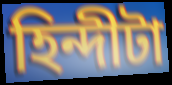
হিন্দীটা